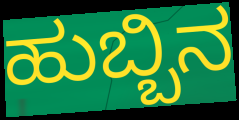
ಹುಬ್ಬಿನ